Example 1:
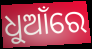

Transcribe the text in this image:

ଧୁଆଁରେ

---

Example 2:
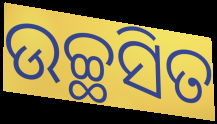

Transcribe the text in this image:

ଉଚ୍ଛସିତ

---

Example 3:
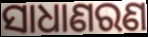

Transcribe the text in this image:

ସାଧାଣରଣ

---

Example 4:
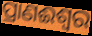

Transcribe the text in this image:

ପ୍ରାଣଈଶ୍ୱର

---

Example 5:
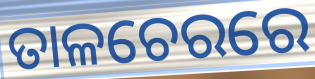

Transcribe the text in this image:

ତାଳଚେରରେ